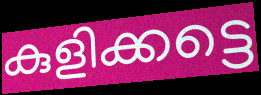
കുളിക്കട്ടെ